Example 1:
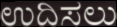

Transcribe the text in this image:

ಉದಿಸಲು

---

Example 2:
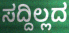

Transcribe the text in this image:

ಸದ್ದಿಲ್ಲದ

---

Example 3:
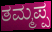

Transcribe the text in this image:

ತಮ್ಮಪ್ಪ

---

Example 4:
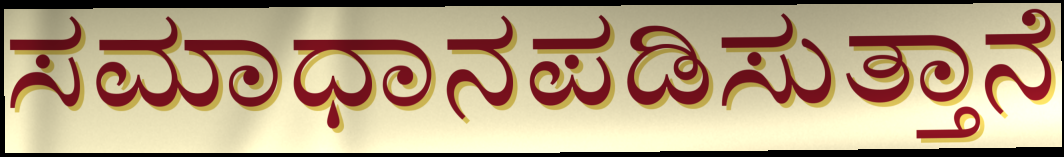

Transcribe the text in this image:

ಸಮಾಧಾನಪಡಿಸುತ್ತಾನೆ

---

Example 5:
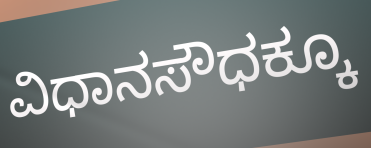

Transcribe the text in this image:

ವಿಧಾನಸೌಧಕ್ಕೂ